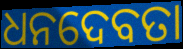
ଧନଦେବତା